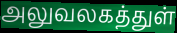
அலுவலகத்துள்